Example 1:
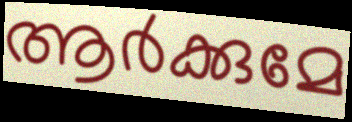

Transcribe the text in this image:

ആർക്കുമേ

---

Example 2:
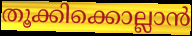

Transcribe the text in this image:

തൂക്കിക്കൊല്ലാൻ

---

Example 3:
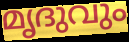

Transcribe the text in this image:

മൃദുവും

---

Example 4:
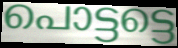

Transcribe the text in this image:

പൊട്ടട്ടെ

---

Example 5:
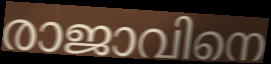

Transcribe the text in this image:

രാജാവിനെ